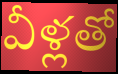
వీళ్లతో